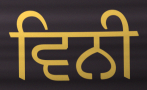
ਵਿਨੀ